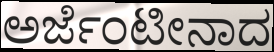
ಅರ್ಜೆಂಟೀನಾದ